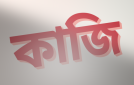
কাজি